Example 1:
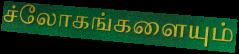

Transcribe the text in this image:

ச்லோகங்களையும்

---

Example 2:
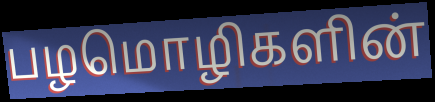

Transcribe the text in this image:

பழமொழிகளின்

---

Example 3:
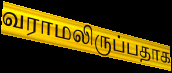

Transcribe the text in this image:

வராமலிருப்பதாக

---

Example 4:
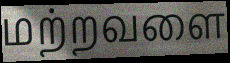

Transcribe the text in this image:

மற்றவளை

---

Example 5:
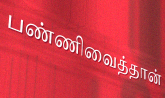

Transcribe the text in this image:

பண்ணிவைத்தான்